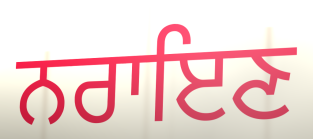
ਨਰਾਇਣ